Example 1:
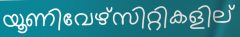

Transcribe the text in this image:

യൂണിവേഴ്സിറ്റികളില്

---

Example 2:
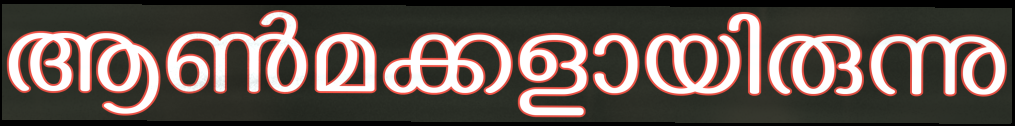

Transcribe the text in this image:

ആൺമക്കളായിരുന്നു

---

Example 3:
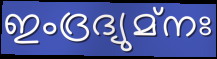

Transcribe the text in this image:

ഇംദ്രദ്യുമ്നഃ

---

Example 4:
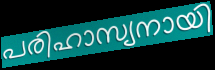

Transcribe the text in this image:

പരിഹാസ്യനായി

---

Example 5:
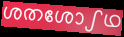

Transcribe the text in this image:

ശതശോഽഥ